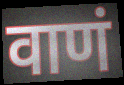
वाणं